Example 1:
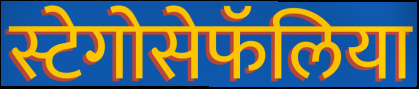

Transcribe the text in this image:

स्टेगोसेफॅलिया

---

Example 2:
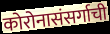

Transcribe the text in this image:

कोरोनासंसर्गाची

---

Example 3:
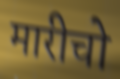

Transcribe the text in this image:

मारीचो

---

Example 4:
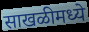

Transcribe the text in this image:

साखळीमध्ये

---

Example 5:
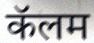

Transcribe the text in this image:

कॅलम